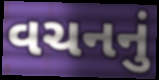
વચનનું